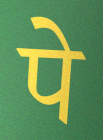
पे